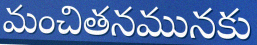
మంచితనమునకు